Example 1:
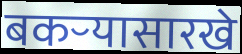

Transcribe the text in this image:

बकऱ्यासारखे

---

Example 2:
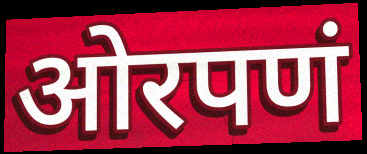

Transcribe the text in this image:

ओरपणं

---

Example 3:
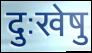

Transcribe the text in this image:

दुःखेषु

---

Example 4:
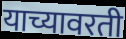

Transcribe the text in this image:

याच्यावरती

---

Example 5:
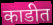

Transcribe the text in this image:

काडीत